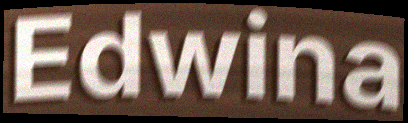
Edwina